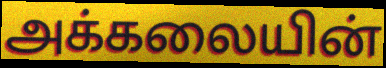
அக்கலையின்